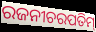
ରଜନୀଚରପତିମ୍